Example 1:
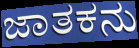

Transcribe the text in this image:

ಜಾತಕನು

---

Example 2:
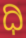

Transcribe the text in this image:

ಧಿ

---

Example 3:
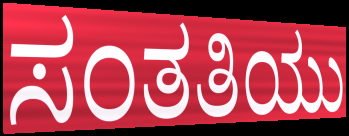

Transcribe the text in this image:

ಸಂತತಿಯು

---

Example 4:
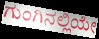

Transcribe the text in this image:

ಗುಂಗಿನಲ್ಲಿಯೇ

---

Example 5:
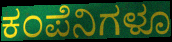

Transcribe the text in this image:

ಕಂಪೆನಿಗಳೂ